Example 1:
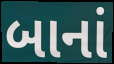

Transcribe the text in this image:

બાનાં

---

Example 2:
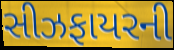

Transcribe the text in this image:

સીઝફાયરની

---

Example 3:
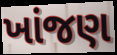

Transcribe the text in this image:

ખાંજણ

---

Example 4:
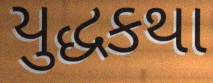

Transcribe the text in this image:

યુદ્ધકથા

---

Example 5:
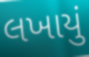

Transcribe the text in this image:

લખાયું